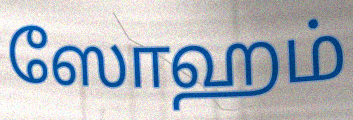
ஸோஹம்